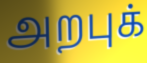
அறபுக்